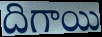
దిగాయి